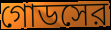
গোডসের